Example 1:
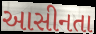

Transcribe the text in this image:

આસીનતા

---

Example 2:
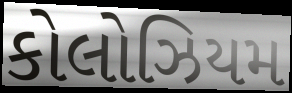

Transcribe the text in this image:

કોલોઝિયમ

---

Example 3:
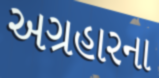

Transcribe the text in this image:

અગ્રહારના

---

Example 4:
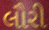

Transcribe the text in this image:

લૌરી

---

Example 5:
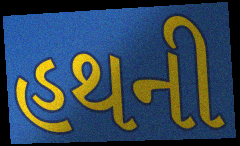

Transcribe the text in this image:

હથની